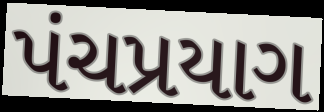
પંચપ્રયાગ